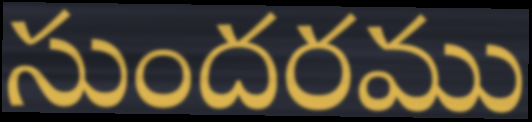
సుందరము